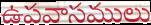
ఉపవాసములు